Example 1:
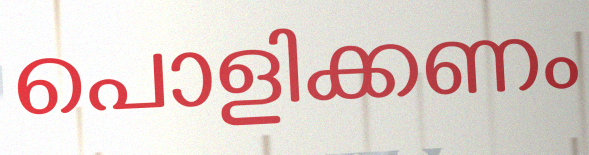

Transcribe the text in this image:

പൊളിക്കണം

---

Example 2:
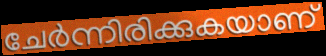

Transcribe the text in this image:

ചേർന്നിരിക്കുകയാണ്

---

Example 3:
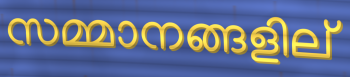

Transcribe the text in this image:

സമ്മാനങ്ങളില്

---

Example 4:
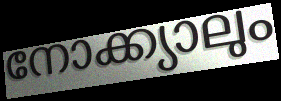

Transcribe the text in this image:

നോക്ക്യാലും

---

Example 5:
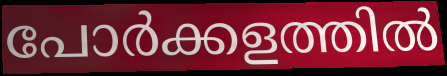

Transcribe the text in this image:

പോർക്കളത്തിൽ